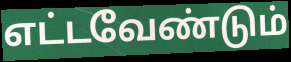
எட்டவேண்டும்